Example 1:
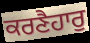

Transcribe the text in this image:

ਕਰਣੈਹਾਰੁ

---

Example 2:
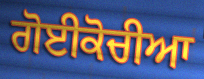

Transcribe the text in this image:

ਗੋਈਕੋਚੀਆ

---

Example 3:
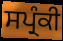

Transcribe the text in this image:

ਸਪ੍ਰੰਕੀ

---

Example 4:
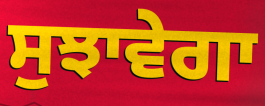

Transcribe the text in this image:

ਸੁਝਾਵੇਗਾ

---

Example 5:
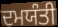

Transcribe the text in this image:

ਦਮਯੰਤੀ